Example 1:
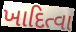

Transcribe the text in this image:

ખાદિત્વા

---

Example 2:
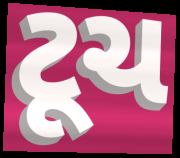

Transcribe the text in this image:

ટૂચ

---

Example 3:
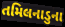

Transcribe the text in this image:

તમિલનાડુના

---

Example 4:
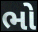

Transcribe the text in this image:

ભો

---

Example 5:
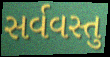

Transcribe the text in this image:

સર્વવસ્તુ